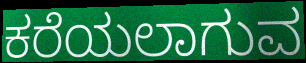
ಕರೆಯಲಾಗುವ